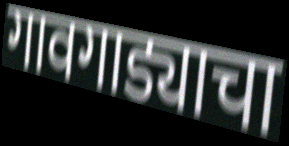
गावगाड्याचा